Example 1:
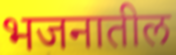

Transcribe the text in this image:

भजनातील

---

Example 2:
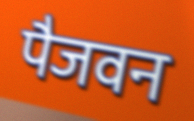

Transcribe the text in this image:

पैजवन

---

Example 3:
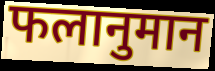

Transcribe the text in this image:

फलानुमान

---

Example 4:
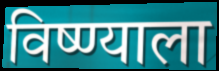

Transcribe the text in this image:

विष्ण्याला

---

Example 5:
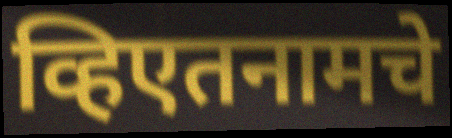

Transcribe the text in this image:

व्हिएतनामचे